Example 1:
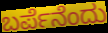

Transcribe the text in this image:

ಬರ್ಪೆನೆಂದು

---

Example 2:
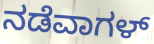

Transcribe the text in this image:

ನಡೆವಾಗಳ್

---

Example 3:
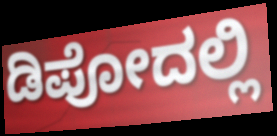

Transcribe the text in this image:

ಡಿಪೋದಲ್ಲಿ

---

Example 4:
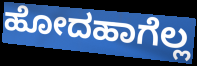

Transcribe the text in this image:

ಹೋದಹಾಗೆಲ್ಲ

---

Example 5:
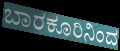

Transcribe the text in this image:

ಬಾರಕೂರಿನಿಂದ